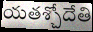
యతశ్చోదేతి